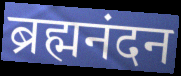
ब्रह्मनंदन